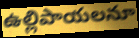
ఉల్లిపాయలనూ